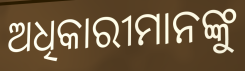
ଅଧିକାରୀମାନଙ୍କୁ